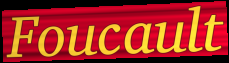
Foucault